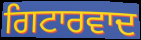
ਗਿਟਾਰਵਾਦ